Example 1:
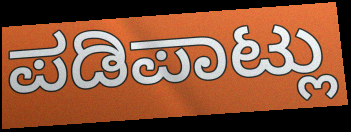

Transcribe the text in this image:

ಪಡಿಪಾಟ್ಲು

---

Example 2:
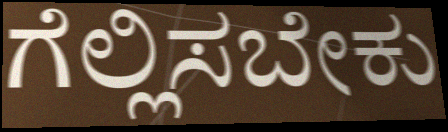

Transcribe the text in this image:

ಗೆಲ್ಲಿಸಬೇಕು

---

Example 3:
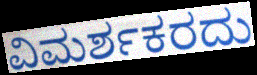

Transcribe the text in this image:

ವಿಮರ್ಶಕರದು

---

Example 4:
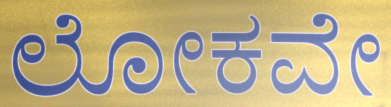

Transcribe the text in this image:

ಲೋಕವೇ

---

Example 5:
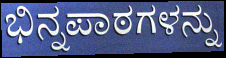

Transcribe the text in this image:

ಭಿನ್ನಪಾಠಗಳನ್ನು